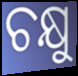
ଚକ୍ଷୁ